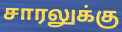
சாரலுக்கு